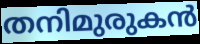
തനിമുരുകൻ